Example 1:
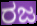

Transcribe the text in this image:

ರಜ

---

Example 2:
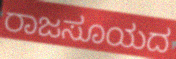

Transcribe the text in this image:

ರಾಜಸೂಯದ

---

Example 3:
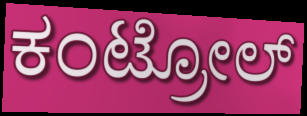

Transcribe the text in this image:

ಕಂಟ್ರೋಲ್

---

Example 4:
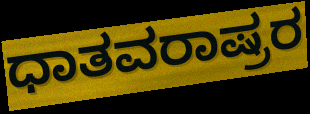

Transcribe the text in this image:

ಧಾತವರಾಷ್ರರ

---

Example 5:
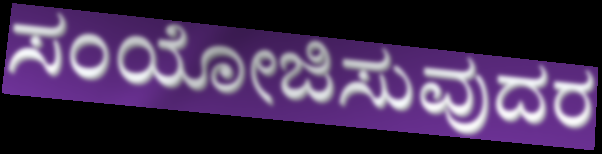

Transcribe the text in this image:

ಸಂಯೋಜಿಸುವುದರ